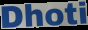
Dhoti